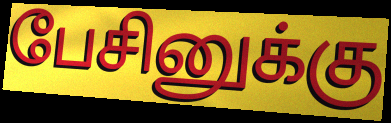
பேசினுக்கு